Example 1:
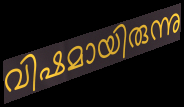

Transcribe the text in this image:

വിഷമായിരുന്നു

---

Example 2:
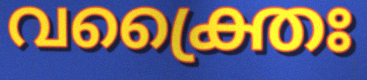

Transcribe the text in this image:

വക്ത്രൈഃ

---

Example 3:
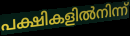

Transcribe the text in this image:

പക്ഷികളിൽനിന്ന്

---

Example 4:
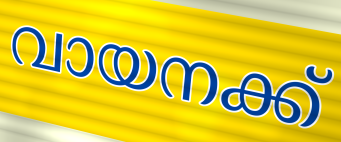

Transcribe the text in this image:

വായനക്ക്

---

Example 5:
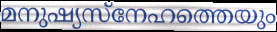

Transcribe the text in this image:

മനുഷ്യസ്നേഹത്തെയും